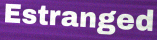
Estranged